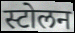
स्टोलन